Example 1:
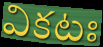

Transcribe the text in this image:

వికటః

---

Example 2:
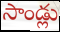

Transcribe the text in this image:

సాండ్లు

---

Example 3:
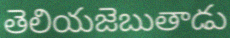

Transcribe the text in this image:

తెలియజెబుతాడు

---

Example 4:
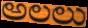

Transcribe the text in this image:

అలలు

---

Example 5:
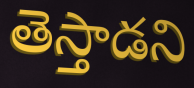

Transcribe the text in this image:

తెస్తాడని